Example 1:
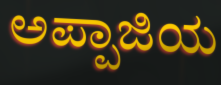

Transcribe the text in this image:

ಅಪ್ಪಾಜಿಯ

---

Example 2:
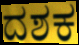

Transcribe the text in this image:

ದಶಕ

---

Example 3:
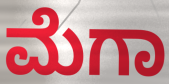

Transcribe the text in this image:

ಮೆಗಾ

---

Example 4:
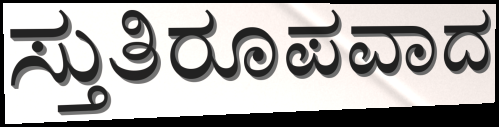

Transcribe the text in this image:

ಸ್ತುತಿರೂಪವಾದ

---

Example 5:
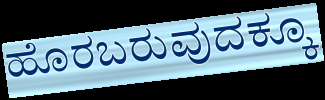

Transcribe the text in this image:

ಹೊರಬರುವುದಕ್ಕೂ